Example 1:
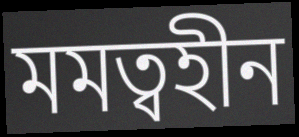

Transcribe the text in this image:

মমত্বহীন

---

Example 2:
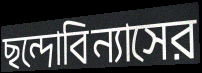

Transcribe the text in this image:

ছন্দোবিন্যাসের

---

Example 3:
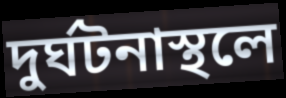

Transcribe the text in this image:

দুর্ঘটনাস্থলে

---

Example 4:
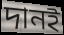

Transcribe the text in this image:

দানই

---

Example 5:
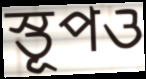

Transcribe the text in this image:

স্তূপও